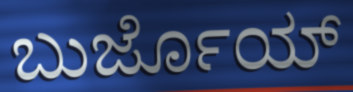
ಬುರ್ಜೊಯ್